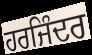
ਹਰਜਿੰਦਰ